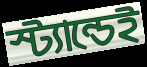
স্ট্যান্ডেই